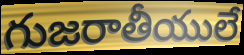
గుజరాతీయులే